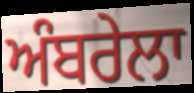
ਅੰਬਰੇਲਾ